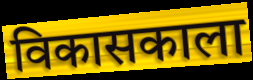
विकासकाला